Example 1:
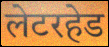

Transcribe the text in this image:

लेटरहेड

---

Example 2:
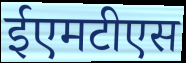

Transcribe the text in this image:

ईएमटीएस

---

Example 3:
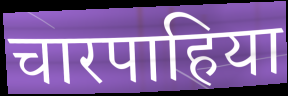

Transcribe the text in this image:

चारपाहिया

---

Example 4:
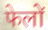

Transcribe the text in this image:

फेलों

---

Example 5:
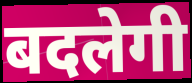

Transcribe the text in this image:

बदलेगी